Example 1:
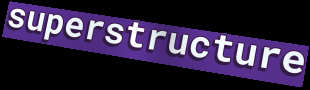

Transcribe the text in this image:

superstructure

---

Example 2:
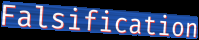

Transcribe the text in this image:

Falsification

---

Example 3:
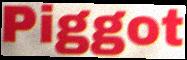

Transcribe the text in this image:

Piggot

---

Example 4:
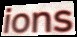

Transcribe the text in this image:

ions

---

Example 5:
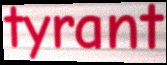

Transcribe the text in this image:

tyrant